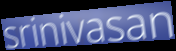
srinivasan